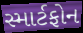
સ્માર્ટફોન